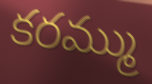
కరమ్ము